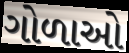
ગોળાઓ